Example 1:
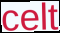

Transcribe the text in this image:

celt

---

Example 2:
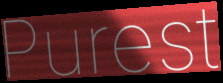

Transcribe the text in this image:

Purest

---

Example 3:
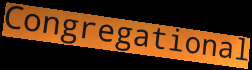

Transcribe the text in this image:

Congregational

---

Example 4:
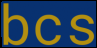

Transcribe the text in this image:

bcs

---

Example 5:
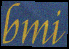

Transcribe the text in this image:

bmi